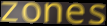
zones